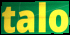
talo